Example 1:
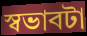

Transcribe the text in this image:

স্বভাবটা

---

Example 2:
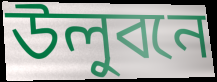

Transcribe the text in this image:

উলুবনে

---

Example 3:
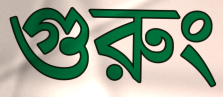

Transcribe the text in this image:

গুরুং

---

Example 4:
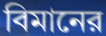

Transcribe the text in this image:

বিমানের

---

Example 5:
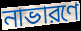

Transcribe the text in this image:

নাভারণে